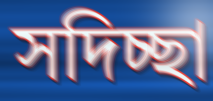
সদিচ্ছা